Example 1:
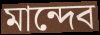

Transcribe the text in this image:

মান্দেব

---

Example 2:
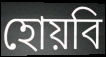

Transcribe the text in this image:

হোয়বি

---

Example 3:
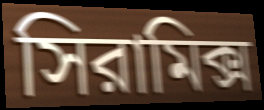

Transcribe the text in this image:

সিরামিক্স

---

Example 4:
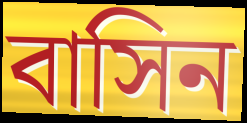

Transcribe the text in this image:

বাসিন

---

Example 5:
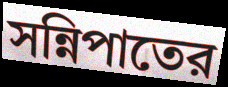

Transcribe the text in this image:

সন্নিপাতের